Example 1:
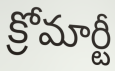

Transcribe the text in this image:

క్రోమార్టీ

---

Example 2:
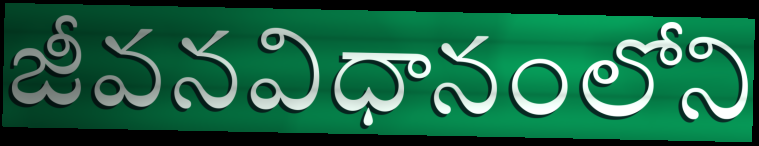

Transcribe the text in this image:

జీవనవిధానంలోని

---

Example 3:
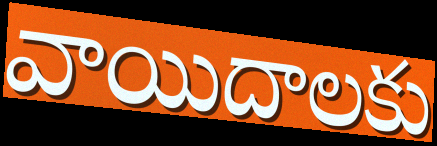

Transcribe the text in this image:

వాయిదాలకు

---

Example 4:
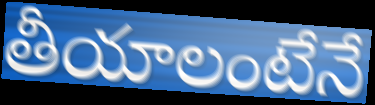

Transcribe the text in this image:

తీయాలంటేనే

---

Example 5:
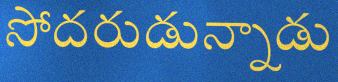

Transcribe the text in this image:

సోదరుడున్నాడు